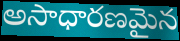
అసాధారణమైన